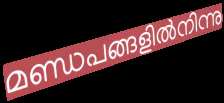
മണ്ഡപങ്ങളിൽനിന്നു